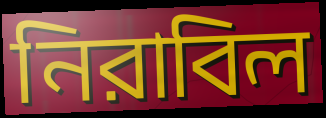
নিরাবিল